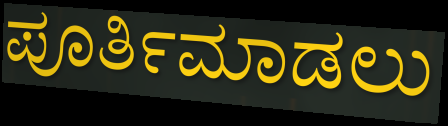
ಪೂರ್ತಿಮಾಡಲು